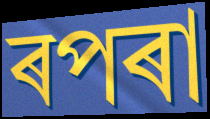
ৰপৰা